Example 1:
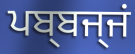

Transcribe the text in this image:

ਪਬ੍ਬਜ੍ਜਂ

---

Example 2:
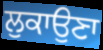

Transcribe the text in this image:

ਲੁਕਾਉਣਾ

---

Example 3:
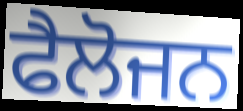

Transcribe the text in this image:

ਫੈਲੋਜਨ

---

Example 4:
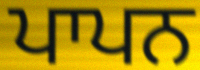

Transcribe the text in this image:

ਪਾਪਨ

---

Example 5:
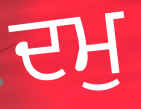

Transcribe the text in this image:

ਦਮੁ